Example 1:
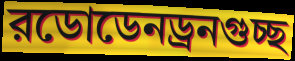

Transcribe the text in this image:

রডোডেনড্রনগুচ্ছ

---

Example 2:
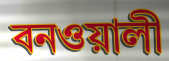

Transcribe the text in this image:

বনওয়ালী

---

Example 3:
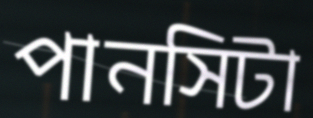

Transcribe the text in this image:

পানসিটা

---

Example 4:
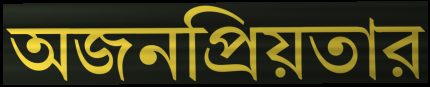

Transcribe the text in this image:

অজনপ্রিয়তার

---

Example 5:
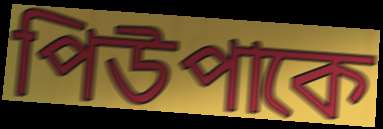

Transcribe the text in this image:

পিউপাকে